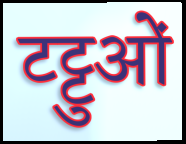
टट्टुओं